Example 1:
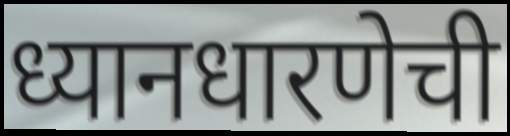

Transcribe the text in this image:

ध्यानधारणेची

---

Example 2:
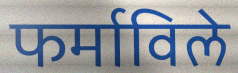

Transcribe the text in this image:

फर्माविले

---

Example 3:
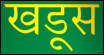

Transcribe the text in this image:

खडूस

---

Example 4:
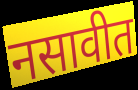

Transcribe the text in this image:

नसावीत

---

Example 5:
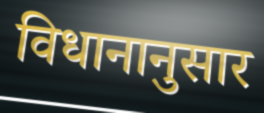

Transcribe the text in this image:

विधानानुसार